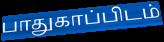
பாதுகாப்பிடம்